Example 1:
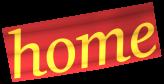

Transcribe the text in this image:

home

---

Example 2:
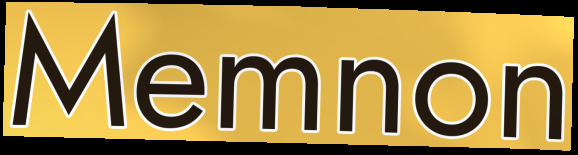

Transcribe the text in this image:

Memnon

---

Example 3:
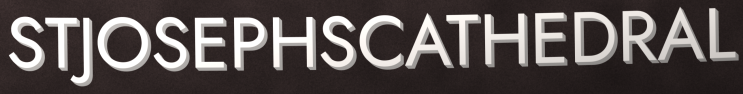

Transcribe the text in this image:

STJOSEPHSCATHEDRAL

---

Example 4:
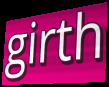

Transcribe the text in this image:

girth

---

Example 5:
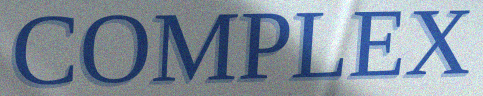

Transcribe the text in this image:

COMPLEX